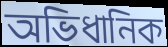
অভিধানিক